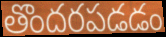
తొందరపడడం